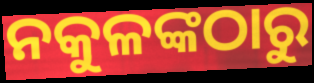
ନକୁଳଙ୍କଠାରୁ